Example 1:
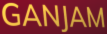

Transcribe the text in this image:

GANJAM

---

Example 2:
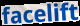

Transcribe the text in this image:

facelift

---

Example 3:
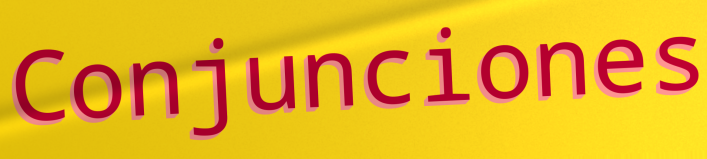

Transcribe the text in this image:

Conjunciones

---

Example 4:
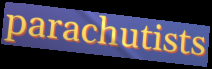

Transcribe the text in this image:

parachutists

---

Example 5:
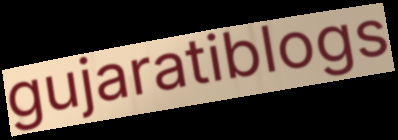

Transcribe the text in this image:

gujaratiblogs